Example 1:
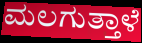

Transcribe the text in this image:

ಮಲಗುತ್ತಾಳೆ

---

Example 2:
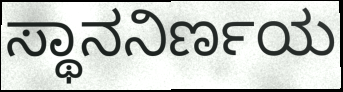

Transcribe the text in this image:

ಸ್ಥಾನನಿರ್ಣಯ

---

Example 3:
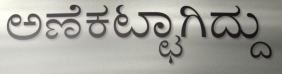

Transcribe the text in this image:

ಅಣೆಕಟ್ಟಾಗಿದ್ದು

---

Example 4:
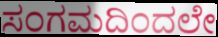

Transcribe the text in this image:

ಸಂಗಮದಿಂದಲೇ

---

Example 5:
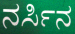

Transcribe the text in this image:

ನರ್ಸಿನ